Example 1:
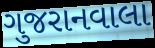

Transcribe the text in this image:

ગુજરાનવાલા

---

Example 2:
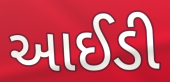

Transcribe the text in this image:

આઈડી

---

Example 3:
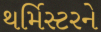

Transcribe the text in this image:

થર્મિસ્ટરને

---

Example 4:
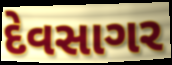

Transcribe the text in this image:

દેવસાગર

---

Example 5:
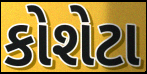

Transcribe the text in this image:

કોશેટા